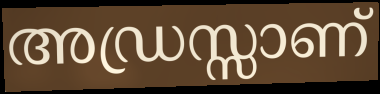
അഡ്രസ്സാണ്